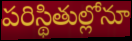
పరిస్థితుల్లోనూ